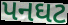
પનઘટ